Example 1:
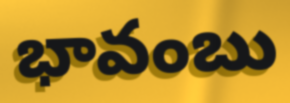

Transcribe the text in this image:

భావంబు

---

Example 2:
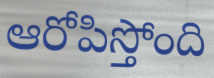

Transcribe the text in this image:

ఆరోపిస్తోంది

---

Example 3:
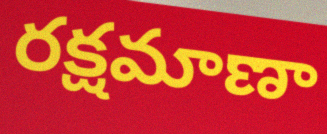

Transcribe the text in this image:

రక్షమాణా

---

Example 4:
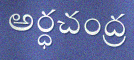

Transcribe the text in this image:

అర్ధచంద్ర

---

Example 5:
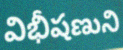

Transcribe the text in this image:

విభీషణుని